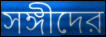
সঙ্গীদের